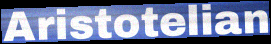
Aristotelian